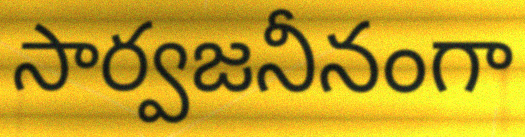
సార్వజనీనంగా